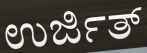
ಉರ್ಜಿತ್